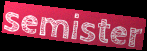
semister